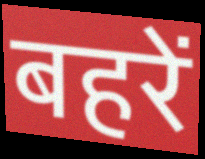
बहरें